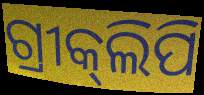
ଗ୍ରୀକ୍‌ଲିପି